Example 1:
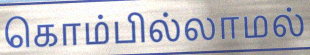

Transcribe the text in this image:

கொம்பில்லாமல்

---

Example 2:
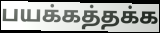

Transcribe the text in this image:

பயக்கத்தக்க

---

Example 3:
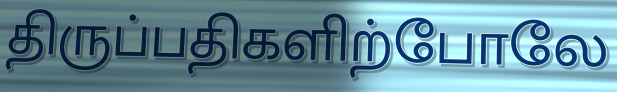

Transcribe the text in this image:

திருப்பதிகளிற்போலே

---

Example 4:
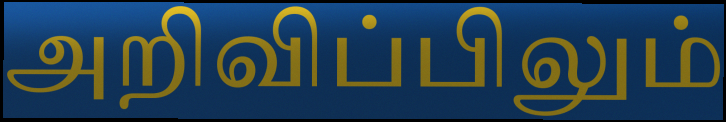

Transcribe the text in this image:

அறிவிப்பிலும்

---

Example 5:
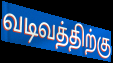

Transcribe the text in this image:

வடிவத்திற்கு